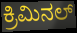
ಕ್ರಿಮಿನಲ್